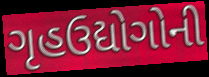
ગૃહઉદ્યોગોની